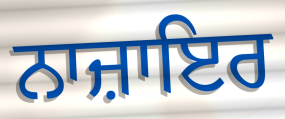
ਨਾਜ਼ਾਇਰ